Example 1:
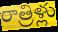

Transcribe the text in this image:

రాత్రిళ్లు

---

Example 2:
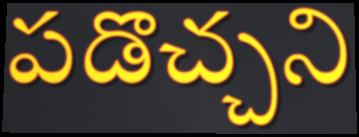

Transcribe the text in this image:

పడొచ్చని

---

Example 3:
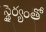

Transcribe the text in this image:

స్థైర్యంతో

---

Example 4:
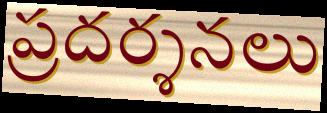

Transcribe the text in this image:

ప్రదర్శనలు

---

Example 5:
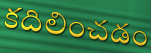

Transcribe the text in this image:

కదిలించడం